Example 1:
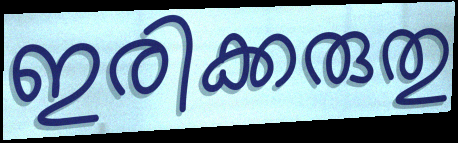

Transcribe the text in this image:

ഇരിക്കരുതു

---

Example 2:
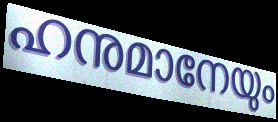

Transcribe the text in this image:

ഹനുമാനേയും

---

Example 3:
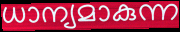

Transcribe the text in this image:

ധാന്യമാകുന്ന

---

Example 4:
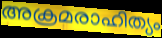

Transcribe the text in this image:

അക്രമരാഹിത്യം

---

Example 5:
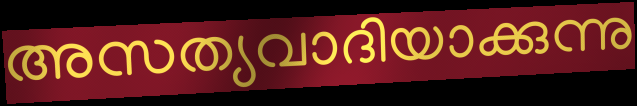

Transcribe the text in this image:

അസത്യവാദിയാക്കുന്നു